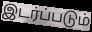
இடர்ப்படும்